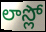
లాస్లో